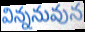
విన్ననువున